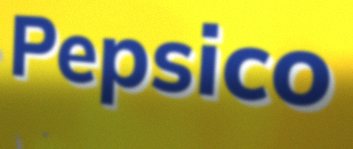
Pepsico